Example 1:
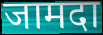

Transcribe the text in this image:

जामदा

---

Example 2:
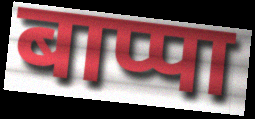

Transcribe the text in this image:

बाप्पा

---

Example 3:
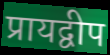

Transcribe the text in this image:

प्रायद्वीप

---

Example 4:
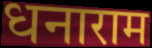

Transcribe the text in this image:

धनाराम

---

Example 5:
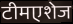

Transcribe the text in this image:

टीमएशेज